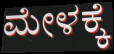
ಮೇಳಕ್ಕೆ